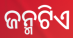
ଜନ୍ମଟିଏ